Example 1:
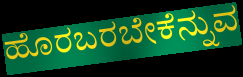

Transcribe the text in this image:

ಹೊರಬರಬೇಕೆನ್ನುವ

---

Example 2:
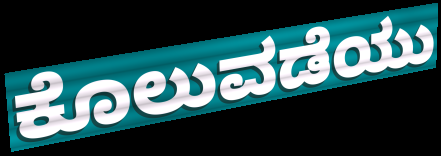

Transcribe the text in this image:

ಕೊಲುವಡೆಯು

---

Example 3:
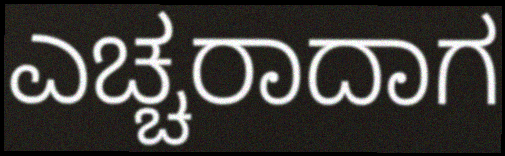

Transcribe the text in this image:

ಎಚ್ಚರಾದಾಗ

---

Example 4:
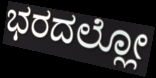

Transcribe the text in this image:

ಭರದಲ್ಲೋ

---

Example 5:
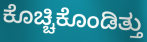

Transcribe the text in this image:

ಕೊಚ್ಚಿಕೊಂಡಿತ್ತು